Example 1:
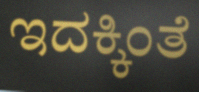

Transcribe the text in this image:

ಇದಕ್ಕಿಂತೆ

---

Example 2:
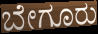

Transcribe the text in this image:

ಬೇಗೂರು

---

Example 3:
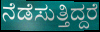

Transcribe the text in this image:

ನೆಡೆಸುತ್ತಿದ್ದರೆ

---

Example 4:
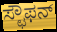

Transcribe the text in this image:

ಸ್ಟೌಫನ್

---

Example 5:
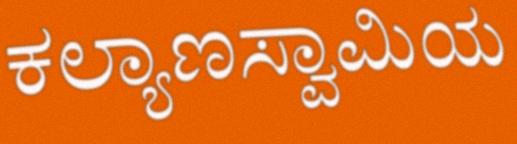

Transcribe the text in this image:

ಕಲ್ಯಾಣಸ್ವಾಮಿಯ